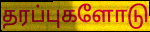
தரப்புகளோடு